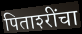
पिताश्रींचा